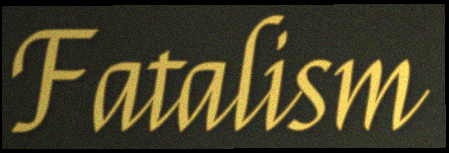
Fatalism